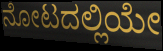
ನೋಟದಲ್ಲಿಯೇ